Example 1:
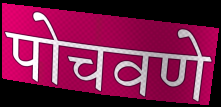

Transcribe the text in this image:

पोचवणे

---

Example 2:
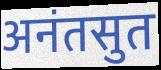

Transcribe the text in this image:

अनंतसुत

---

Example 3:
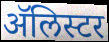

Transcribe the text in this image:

ॲलिस्टर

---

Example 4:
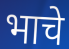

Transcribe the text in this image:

भाचे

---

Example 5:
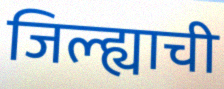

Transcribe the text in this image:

जिल्ह्याची